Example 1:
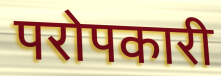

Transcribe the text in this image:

परोपकारी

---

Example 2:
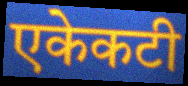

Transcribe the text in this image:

एकेकटी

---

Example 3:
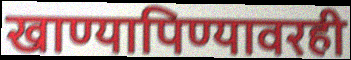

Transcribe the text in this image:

खाण्यापिण्यावरही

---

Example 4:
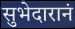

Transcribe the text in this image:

सुभेदारानं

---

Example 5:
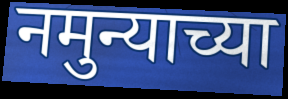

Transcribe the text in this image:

नमुन्याच्या